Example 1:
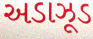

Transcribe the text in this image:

અડાઝૂડ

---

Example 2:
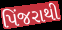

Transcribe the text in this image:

પિંજરાથી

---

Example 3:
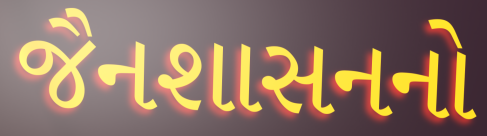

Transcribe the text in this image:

જૈનશાસનનો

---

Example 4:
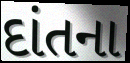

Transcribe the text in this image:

દાંતના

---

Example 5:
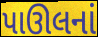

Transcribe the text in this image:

પાઊલનાં